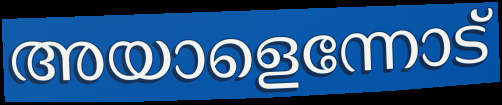
അയാളെന്നോട്